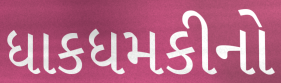
ધાકધમકીનો